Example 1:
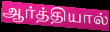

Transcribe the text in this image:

ஆர்த்தியால்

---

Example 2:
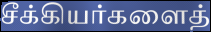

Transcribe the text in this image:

சீக்கியர்களைத்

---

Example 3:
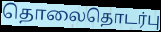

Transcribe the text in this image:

தொலைதொடர்பு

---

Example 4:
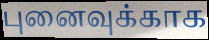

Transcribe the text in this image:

புனைவுக்காக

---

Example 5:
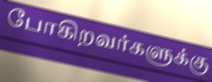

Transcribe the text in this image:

போகிறவர்களுக்கு